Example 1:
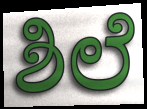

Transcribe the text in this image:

ಶಿಲೆ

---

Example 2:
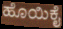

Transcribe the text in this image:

ಹೊಯಿಕೈ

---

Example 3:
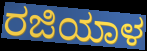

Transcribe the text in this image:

ರಜಿಯಾಳ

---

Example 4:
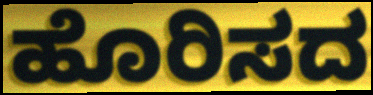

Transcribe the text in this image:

ಹೊರಿಸದ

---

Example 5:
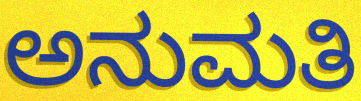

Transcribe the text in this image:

ಅನುಮತಿ